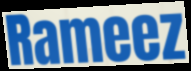
Rameez